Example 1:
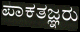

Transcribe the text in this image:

ಪಾಕತಜ್ಞರು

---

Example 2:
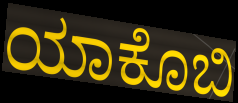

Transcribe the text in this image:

ಯಾಕೊಬಿ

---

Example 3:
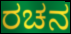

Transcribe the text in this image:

ರಚನ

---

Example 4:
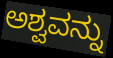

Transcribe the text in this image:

ಅಶ್ವವನ್ನು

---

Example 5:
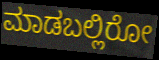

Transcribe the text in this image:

ಮಾಡಬಲ್ಲಿರೋ